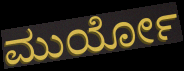
ಮುರ್ಯೋ